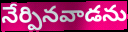
నేర్పినవాడను